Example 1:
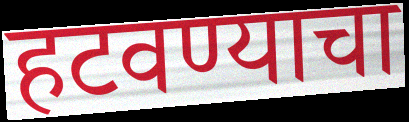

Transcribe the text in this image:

हटवण्याचा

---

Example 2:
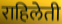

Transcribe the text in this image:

राहिलेती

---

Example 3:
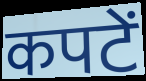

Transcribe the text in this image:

कपटें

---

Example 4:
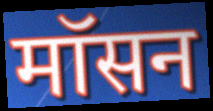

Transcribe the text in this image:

मॉसन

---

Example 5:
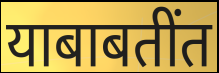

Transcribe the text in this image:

याबाबतींत